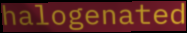
halogenated